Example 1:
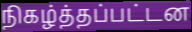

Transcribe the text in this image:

நிகழ்த்தப்பட்டன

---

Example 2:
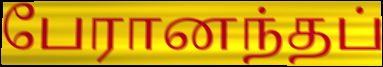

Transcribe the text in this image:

பேரானந்தப்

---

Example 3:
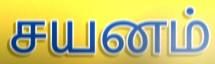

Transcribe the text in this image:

சயனம்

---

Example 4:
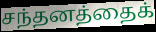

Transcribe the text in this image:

சந்தனத்தைக்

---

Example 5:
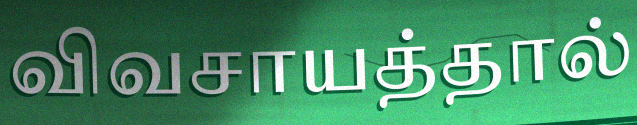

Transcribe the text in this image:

விவசாயத்தால்